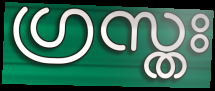
ഗ്രസ്തഃ